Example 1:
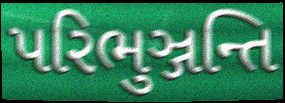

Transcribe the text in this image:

પરિભુઞ્જન્તિ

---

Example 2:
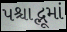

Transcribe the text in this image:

પશ્ચાદ્ભૂમાં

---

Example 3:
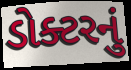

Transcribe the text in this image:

ડોક્ટરનું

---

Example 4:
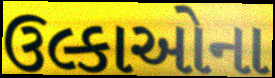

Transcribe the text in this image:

ઉલ્કાઓના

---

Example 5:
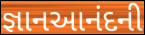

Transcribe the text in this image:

જ્ઞાનઆનંદની